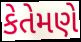
કેતેમણે